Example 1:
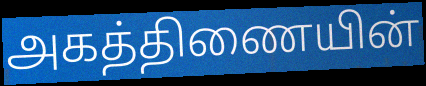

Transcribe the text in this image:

அகத்திணையின்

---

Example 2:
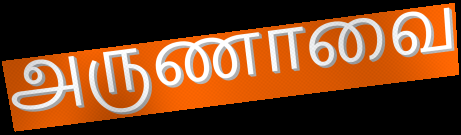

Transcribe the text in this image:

அருணாவை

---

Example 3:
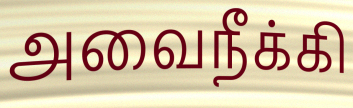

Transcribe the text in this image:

அவைநீக்கி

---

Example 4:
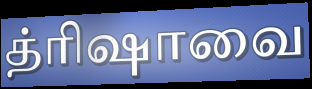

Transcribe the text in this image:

த்ரிஷாவை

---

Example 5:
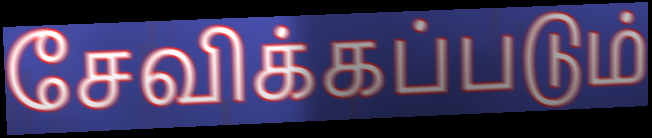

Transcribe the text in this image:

சேவிக்கப்படும்